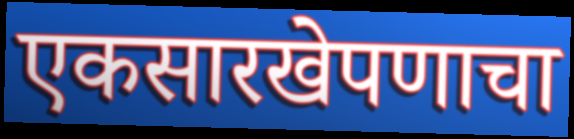
एकसारखेपणाचा